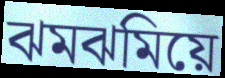
ঝমঝমিয়ে